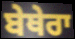
ਬੇਥੇਰਾ